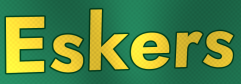
Eskers